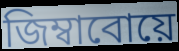
জিম্বাবোয়ে